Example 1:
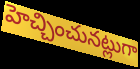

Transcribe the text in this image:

హెచ్చించునట్లుగా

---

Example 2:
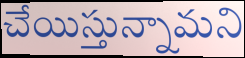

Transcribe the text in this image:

చేయిస్తున్నామని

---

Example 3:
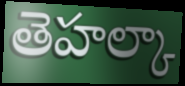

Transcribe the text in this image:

తెహల్కా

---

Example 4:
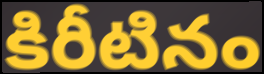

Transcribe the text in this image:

కిరీటినం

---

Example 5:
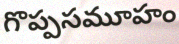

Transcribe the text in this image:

గొప్పసమూహం